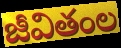
జీవితంల